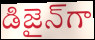
డిజైన్‌గా